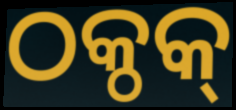
ଠକ୍ଠକ୍